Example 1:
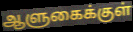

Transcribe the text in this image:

ஆளுகைக்குள்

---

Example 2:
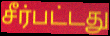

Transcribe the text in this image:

சீர்பட்டது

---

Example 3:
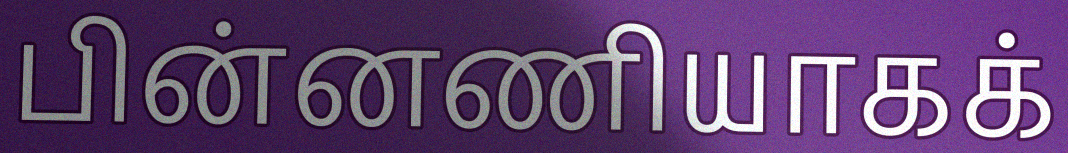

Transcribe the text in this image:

பின்னணியாகக்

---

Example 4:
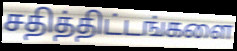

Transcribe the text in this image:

சதித்திட்டங்களை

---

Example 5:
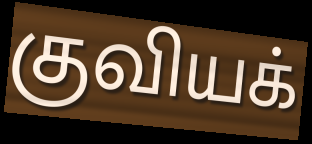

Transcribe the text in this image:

குவியக்